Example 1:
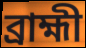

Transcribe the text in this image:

ব্ৰাহ্মী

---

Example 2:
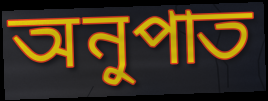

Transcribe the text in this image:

অনুপাত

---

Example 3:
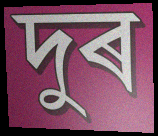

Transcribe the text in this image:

দুৰ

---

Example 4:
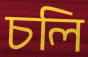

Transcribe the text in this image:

চলি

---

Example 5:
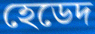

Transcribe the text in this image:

হেডেদ